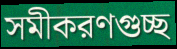
সমীকরণগুচ্ছ